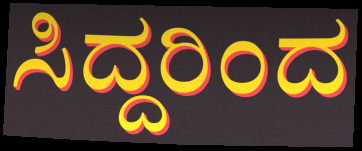
ಸಿದ್ದರಿಂದ